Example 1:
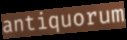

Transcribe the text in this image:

antiquorum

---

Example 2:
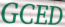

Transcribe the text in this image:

GCED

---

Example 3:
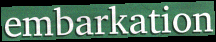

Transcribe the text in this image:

embarkation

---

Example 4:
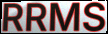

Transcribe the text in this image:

RRMS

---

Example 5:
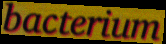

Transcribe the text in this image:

bacterium